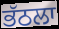
ਭੱਠਲਾ